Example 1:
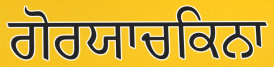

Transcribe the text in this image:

ਗੋਰਯਾਚਕਿਨਾ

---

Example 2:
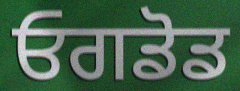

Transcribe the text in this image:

ਓਗਡੋਡ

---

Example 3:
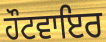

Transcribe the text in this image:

ਹੌਟਵਾਇਰ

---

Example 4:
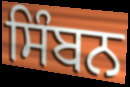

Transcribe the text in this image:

ਸਿੰਬਨ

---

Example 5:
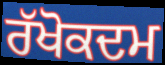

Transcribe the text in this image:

ਰੱਖੋਕਦਮ